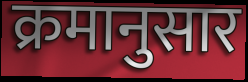
क्रमानुसार